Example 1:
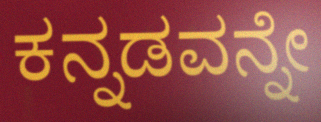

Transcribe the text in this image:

ಕನ್ನಡವನ್ನೇ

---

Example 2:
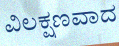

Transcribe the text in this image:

ವಿಲಕ್ಷಣವಾದ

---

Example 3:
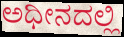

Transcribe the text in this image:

ಅಧೀನದಲ್ಲಿ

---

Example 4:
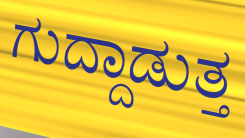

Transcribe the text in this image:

ಗುದ್ದಾಡುತ್ತ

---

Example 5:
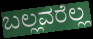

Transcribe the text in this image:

ಬಲ್ಲವರೆಲ್ಲ